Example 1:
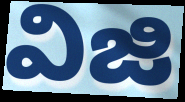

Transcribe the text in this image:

విజి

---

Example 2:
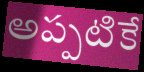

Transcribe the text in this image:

అప్పటికే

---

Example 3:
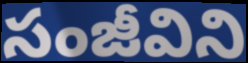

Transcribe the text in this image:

సంజీవిని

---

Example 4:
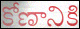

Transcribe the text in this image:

కోణానికి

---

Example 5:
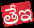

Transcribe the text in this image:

తేఇ